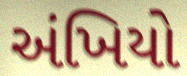
અંખિયો